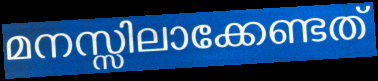
മനസ്സിലാക്കേണ്ടത്